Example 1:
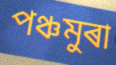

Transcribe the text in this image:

পঞ্চমুৰা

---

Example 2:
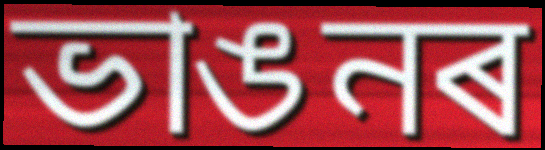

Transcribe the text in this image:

ভাঙনৰ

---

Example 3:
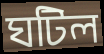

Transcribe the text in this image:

ঘটিল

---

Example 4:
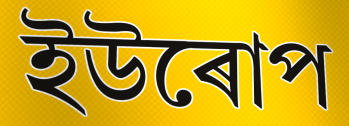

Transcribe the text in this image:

ইউৰোপ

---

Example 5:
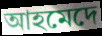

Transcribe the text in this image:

আহমেদে